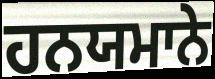
ਹਨਯਮਾਨੇ